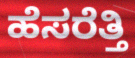
ಹೆಸರೆತ್ತಿ